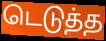
டெடுத்த